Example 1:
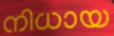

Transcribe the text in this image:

നിധായ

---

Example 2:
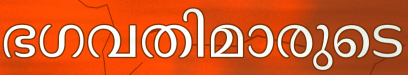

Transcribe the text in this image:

ഭഗവതിമാരുടെ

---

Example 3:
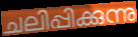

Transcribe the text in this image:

ചലിപ്പിക്കുന്നു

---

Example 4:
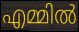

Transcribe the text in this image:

എമ്മിൽ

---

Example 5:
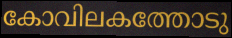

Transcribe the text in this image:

കോവിലകത്തോടു